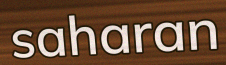
saharan